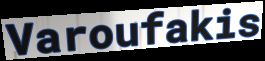
Varoufakis